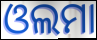
ଓଲମା